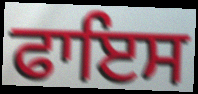
ਫਾਇਸ